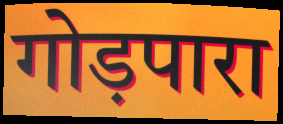
गोड़पारा